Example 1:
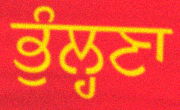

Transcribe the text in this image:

ਭੁੰਲ੍ਹਣਾ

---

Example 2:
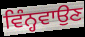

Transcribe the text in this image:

ਵਿੰਨ੍ਹਵਾਉਣ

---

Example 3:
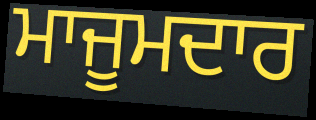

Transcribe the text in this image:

ਮਾਜੂਮਦਾਰ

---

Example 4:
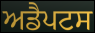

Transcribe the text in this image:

ਅਡੈਪਟਸ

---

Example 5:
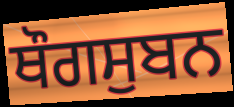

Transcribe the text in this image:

ਥੌਗਸੁਬਨ